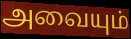
அவையும்